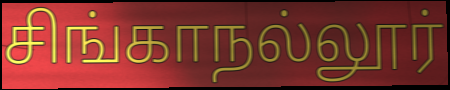
சிங்காநல்லூர்